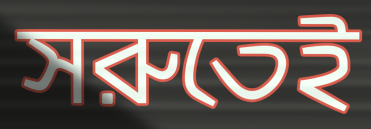
সৰুতেই